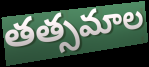
తత్సమాల